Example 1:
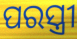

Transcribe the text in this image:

ପରସ୍ତ୍ରୀ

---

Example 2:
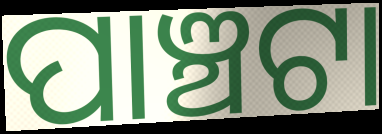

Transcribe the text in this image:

ପାଞ୍ଚଟା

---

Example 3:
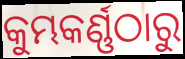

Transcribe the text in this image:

କୁମ୍ଭକର୍ଣ୍ଣଠାରୁ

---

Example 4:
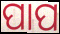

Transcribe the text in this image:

ପାପ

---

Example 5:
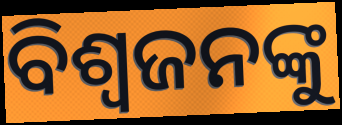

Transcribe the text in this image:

ବିଶ୍ୱଜନଙ୍କୁ